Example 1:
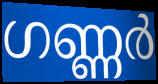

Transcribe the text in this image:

ഗണ്ണർ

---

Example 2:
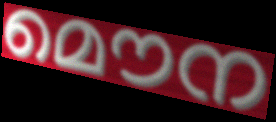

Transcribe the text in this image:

മൌന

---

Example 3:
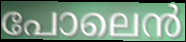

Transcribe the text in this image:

പോലെൻ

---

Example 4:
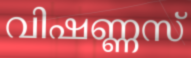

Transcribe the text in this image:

വിഷണ്ണസ്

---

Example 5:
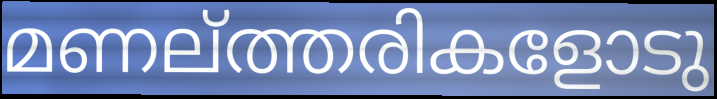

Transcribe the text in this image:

മണല്ത്തരികളോടു